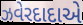
ઝવેરદાદાએ